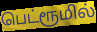
பெட்ரூமில்